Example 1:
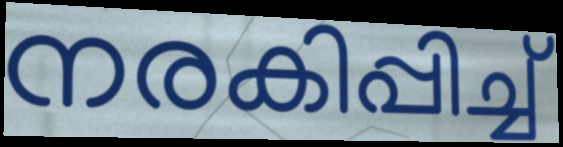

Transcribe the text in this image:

നരകിപ്പിച്ച്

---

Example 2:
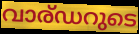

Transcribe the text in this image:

വാര്ഡറുടെ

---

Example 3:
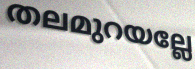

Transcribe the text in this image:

തലമുറയല്ലേ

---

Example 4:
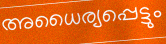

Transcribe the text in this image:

അധൈര്യപ്പെട്ടും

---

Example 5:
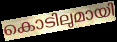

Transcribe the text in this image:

കൊടിലുമായി